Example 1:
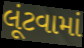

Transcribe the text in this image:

લૂંટવામાં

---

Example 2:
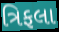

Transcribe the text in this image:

ત્રિફલા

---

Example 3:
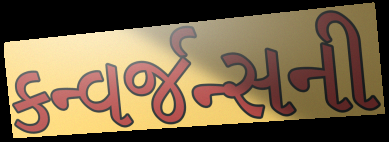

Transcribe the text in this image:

કન્વર્જન્સની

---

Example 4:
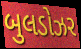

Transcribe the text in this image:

બુલડોઝર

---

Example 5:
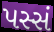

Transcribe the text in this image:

પસ્સં